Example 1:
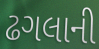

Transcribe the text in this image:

ઢગલાની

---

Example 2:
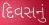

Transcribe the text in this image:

દિવસનું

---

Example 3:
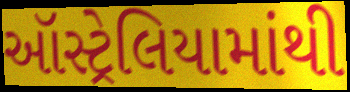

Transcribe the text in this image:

ઑસ્ટ્રેલિયામાંથી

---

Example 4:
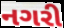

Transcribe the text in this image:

નગરી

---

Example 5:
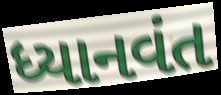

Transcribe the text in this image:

ધ્યાનવંત